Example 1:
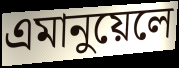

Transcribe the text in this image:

এমানুয়েলে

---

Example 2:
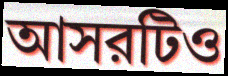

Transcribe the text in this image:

আসরটিও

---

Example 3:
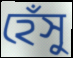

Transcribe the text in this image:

হেঁসু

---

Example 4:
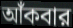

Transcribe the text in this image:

আঁকবার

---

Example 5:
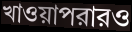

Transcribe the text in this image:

খাওয়াপরারও